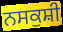
ਨਸਕੁਸ਼ੀ